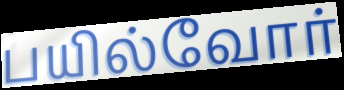
பயில்வோர்